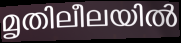
മൃതിലീലയിൽ